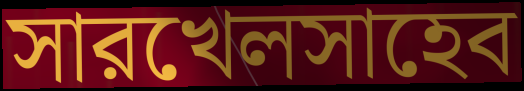
সারখেলসাহেব